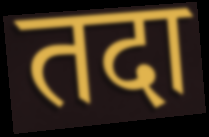
तदा